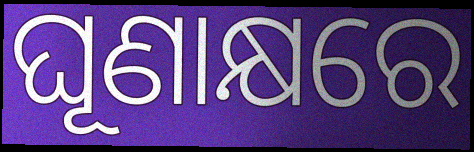
ଘୂଣାକ୍ଷରେ